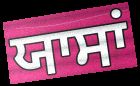
ਯਾਸਾਂ